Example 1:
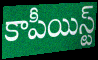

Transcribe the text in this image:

కాపీయిస్ట్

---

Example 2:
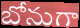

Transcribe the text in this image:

బోనుగా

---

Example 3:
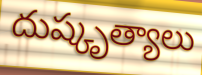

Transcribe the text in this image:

దుష్కృత్యాలు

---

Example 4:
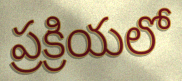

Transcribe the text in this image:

ప్రక్రియలో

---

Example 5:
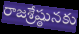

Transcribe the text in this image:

రాజశ్రేష్ఠునకు